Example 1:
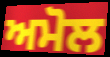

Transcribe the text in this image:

ਅਮੋਲ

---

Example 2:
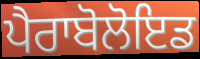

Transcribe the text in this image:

ਪੈਰਾਬੋਲੋਇਡ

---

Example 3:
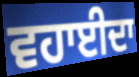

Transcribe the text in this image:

ਵਹਾਈਦਾ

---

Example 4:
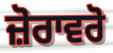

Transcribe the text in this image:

ਜ਼ੋਰਾਵਰੋ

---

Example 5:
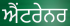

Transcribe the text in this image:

ਐਂਟਰੇਨਰ